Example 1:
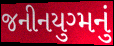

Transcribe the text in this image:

જનીનયુગ્મનું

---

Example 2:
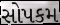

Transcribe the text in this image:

સોપકમ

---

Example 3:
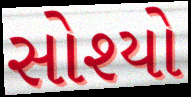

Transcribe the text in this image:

સોશ્યો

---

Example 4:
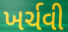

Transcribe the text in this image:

ખર્ચવી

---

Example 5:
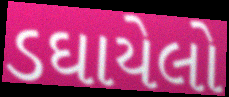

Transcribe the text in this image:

ડઘાયેલો